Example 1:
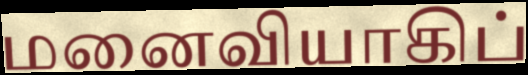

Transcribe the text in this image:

மனைவியாகிப்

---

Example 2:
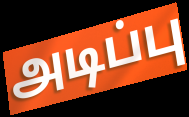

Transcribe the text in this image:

அடிப்பு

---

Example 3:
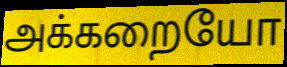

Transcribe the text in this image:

அக்கறையோ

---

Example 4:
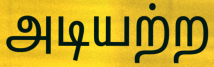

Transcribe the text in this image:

அடியற்ற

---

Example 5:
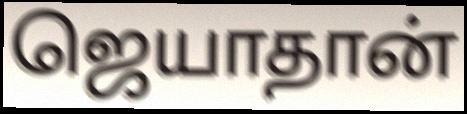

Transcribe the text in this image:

ஜெயாதான்